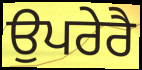
ਉਪਰੇਰੈ